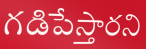
గడిపేస్తారని